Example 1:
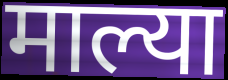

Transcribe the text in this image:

माल्या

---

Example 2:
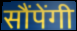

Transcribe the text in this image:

सौंपेंगी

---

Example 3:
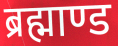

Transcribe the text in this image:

ब्रह्माण्ड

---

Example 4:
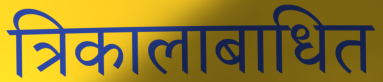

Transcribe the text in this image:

त्रिकालाबाधित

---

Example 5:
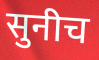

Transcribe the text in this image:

सुनीच